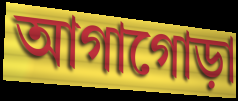
আগাগোড়া